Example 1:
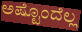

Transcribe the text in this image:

ಅಷ್ಟೊಂದೆಲ್ಲ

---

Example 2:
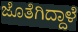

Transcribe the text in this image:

ಜೊತೆಗಿದ್ದಾಳೆ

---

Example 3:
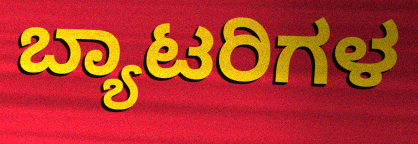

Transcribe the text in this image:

ಬ್ಯಾಟರಿಗಳ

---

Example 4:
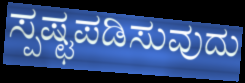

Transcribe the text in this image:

ಸ್ಪಷ್ಟಪಡಿಸುವುದು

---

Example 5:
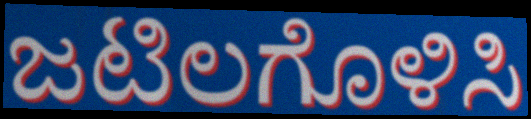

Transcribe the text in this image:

ಜಟಿಲಗೊಳಿಸಿ